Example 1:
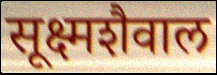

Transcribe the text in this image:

सूक्ष्मशैवाल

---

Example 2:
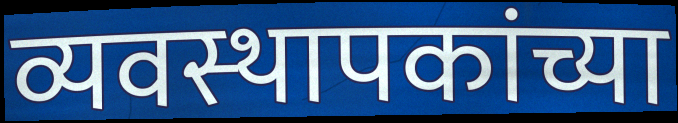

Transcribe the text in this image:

व्यवस्थापकांच्या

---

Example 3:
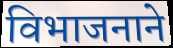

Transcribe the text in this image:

विभाजनाने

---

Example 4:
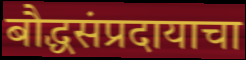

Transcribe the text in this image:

बौद्धसंप्रदायाचा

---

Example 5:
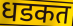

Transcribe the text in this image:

धडकत